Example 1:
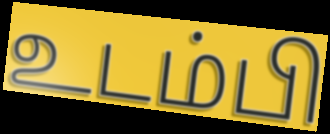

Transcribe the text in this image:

உடம்பி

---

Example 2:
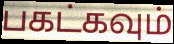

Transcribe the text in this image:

பகட்கவும்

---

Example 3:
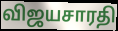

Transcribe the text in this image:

விஜயசாரதி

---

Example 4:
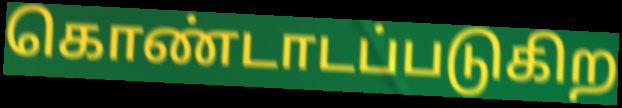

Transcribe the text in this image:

கொண்டாடப்படுகிற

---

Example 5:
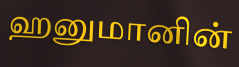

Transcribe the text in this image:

ஹனுமானின்